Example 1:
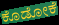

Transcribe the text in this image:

ಕೊಡೋಕೆ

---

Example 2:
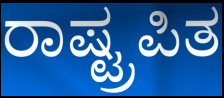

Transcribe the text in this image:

ರಾಷ್ಟ್ರಪಿತ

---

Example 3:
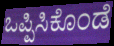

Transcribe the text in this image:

ಒಪ್ಪಿಸಿಕೊಂಡೆ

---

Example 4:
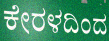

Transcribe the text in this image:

ಕೇರಳದಿಂದ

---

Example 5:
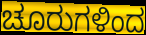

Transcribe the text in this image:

ಚೂರುಗಳಿಂದ